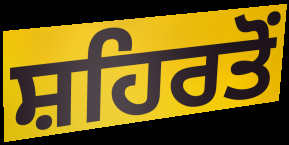
ਸ਼ਹਿਰਤੋਂ